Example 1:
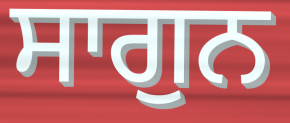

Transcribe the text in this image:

ਸਾਗੁਨ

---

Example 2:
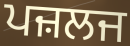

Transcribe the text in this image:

ਪਜ਼ਲਜ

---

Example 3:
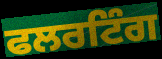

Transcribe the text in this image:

ਫਲਰਟਿੰਗ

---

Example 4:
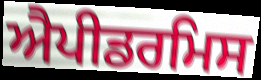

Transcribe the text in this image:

ਐਪੀਡਰਮਿਸ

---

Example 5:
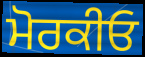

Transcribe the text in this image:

ਮੋਰਕੀਓ